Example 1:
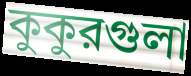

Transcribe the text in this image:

কুকুরগুলা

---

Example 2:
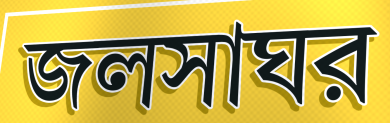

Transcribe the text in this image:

জলসাঘর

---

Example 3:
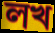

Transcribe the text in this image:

লখ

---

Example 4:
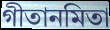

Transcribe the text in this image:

গীতানমিতা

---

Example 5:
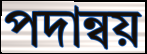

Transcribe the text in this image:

পদান্বয়